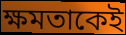
ক্ষমতাকেই